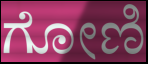
ಗೋಣಿ